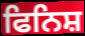
ਫਿਨਿਸ਼